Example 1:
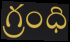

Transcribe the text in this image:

గ్రంధి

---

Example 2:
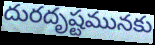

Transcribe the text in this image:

దురదృష్టమునకు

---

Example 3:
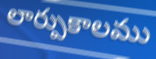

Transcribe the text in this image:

లార్పుకాలము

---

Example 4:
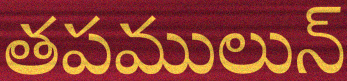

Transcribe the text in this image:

తపములున్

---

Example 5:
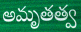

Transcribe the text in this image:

అమృతత్వ